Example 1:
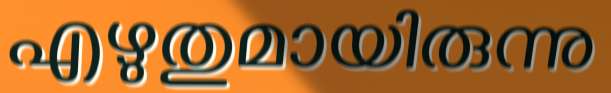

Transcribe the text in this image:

എഴുതുമായിരുന്നു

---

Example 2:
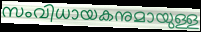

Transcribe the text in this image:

സംവിധായകനുമായുള്ള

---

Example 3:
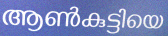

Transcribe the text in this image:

ആൺകുട്ടിയെ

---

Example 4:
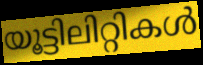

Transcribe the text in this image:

യൂട്ടിലിറ്റികൾ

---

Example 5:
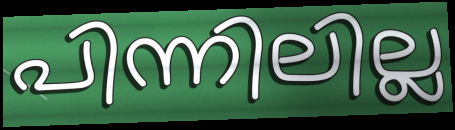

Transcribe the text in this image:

പിന്നിലില്ല